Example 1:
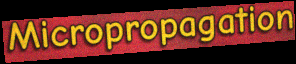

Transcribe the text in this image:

Micropropagation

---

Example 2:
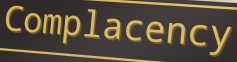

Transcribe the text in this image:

Complacency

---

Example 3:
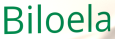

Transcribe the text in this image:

Biloela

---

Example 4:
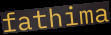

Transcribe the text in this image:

fathima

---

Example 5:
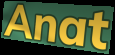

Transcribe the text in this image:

Anat